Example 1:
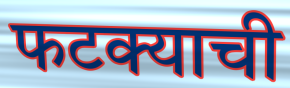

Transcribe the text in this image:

फटक्याची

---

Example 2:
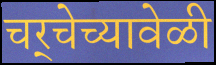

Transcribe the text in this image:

चर्चेच्यावेळी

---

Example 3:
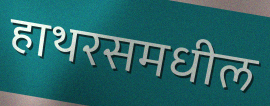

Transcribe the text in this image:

हाथरसमधील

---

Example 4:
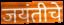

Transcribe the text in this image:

जयंतीचे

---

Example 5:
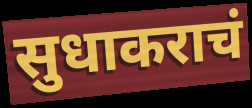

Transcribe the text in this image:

सुधाकराचं